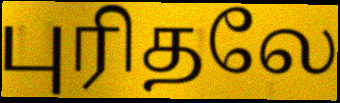
புரிதலே